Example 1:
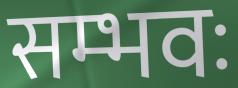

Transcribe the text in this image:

सम्भवः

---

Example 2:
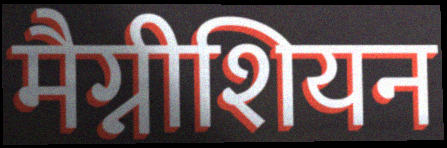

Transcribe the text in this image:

मैग्नीशियन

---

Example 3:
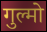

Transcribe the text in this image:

गुल्मो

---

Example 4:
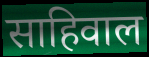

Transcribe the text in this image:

साहिवाल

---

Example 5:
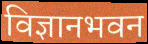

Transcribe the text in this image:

विज्ञानभवन